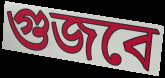
গুজবে